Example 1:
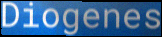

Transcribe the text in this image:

Diogenes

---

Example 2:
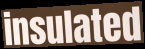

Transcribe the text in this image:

insulated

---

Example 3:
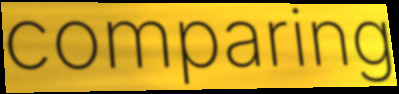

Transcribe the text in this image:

comparing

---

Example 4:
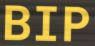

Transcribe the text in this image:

BIP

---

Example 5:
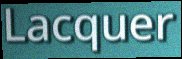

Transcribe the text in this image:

Lacquer